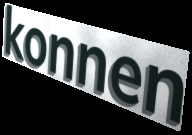
konnen